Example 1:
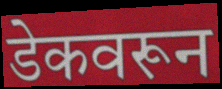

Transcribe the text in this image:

डेकवरून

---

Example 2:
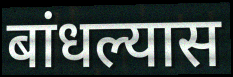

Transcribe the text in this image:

बांधल्यास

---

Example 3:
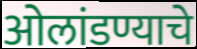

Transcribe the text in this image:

ओलांडण्याचे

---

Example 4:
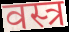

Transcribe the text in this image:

वस्त्र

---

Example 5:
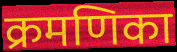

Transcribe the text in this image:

क्रमणिका